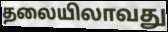
தலையிலாவது